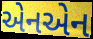
એનએન